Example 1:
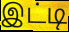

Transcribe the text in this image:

இட்டி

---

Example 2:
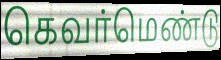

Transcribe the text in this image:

கெவர்மெண்டு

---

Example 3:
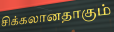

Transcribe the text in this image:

சிக்கலானதாகும்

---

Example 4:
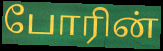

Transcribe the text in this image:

போரின்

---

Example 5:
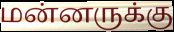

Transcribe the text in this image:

மன்னருக்கு